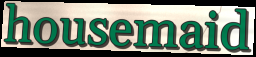
housemaid